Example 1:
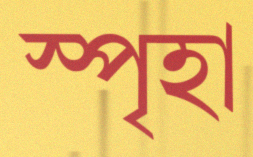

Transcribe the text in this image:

স্পৃহা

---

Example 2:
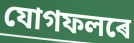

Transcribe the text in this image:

যোগফলৰে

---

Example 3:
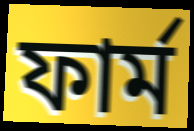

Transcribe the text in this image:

ফাৰ্ম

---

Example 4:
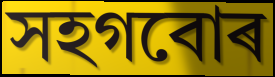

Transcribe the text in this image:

সহগবোৰ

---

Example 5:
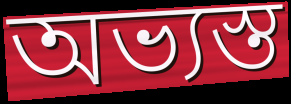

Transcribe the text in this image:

অভ্যস্ত